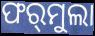
ଫର୍‌ମୁଲା